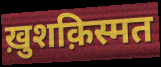
ख़ुशक़िस्मत